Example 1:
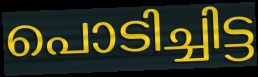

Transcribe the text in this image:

പൊടിച്ചിട്ട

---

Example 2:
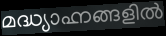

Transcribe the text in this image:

മദ്ധ്യാഹ്നങ്ങളിൽ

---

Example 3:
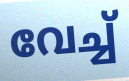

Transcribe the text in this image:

വേച്ച്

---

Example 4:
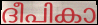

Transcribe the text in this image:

ദീപികാ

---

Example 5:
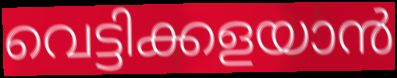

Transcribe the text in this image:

വെട്ടിക്കളയാൻ